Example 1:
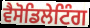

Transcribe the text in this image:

ਵੈਸੋਡਿਲੇਟਿੰਗ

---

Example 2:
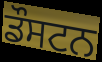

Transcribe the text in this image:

ਡੌਸਟਨ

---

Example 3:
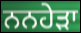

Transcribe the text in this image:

ਨਨਹੇੜਾ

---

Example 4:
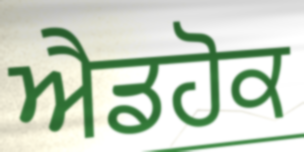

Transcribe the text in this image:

ਐਡਹੋਕ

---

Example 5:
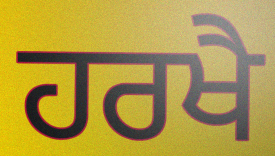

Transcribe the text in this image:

ਹਰਖੈ